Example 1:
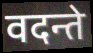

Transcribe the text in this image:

वदन्ते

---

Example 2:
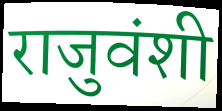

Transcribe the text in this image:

राजुवंशी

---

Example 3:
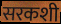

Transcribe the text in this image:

सरकशी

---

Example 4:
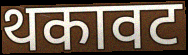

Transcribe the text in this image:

थकावट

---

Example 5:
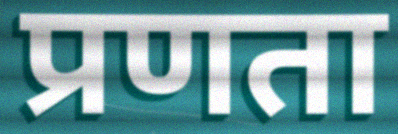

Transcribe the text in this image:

प्रणता